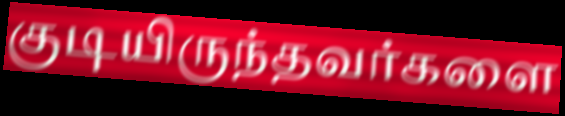
குடியிருந்தவர்களை